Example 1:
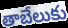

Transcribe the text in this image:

తాబేలుకు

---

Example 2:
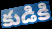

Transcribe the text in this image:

కుడికి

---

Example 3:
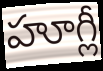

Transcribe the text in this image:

హూగ్లీ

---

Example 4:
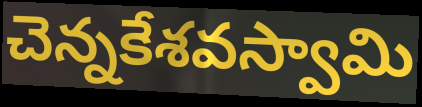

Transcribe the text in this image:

చెన్నకేశవస్వామి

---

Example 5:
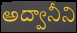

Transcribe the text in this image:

అద్వానీని